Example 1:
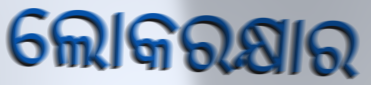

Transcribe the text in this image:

ଲୋକରକ୍ଷାର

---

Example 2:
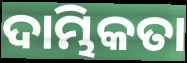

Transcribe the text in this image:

ଦାମ୍ଭିକତା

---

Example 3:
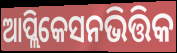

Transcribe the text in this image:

ଆପ୍ଲିକେସନଭିତ୍ତିକ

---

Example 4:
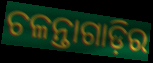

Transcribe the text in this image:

ଚଳନ୍ତାଗାଡ଼ିର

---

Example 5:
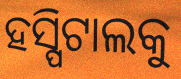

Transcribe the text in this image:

ହସ୍ପିଟାଲକୁ